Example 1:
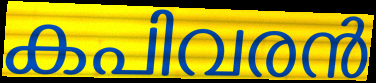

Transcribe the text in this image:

കപിവരൻ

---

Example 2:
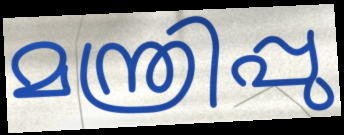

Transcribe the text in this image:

മന്ത്രിപ്പു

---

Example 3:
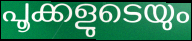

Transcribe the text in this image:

പൂക്കളുടെയും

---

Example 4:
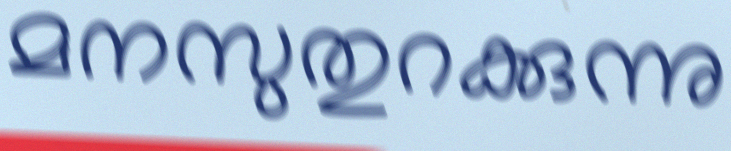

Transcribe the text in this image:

മനസുതുറക്കുന്നു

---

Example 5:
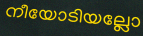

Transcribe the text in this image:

നീയോടിയല്ലോ